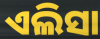
ଏଲିସା